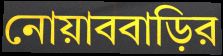
নোয়াববাড়ির